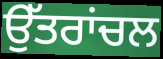
ਉੱਤਰਾਂਚਲ